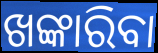
ଖଙ୍କାରିବା